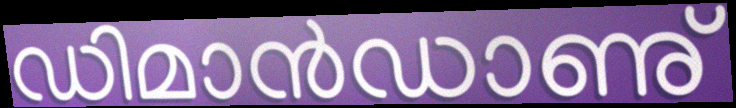
ഡിമാൻഡാണു്